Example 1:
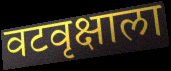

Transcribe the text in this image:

वटवृक्षाला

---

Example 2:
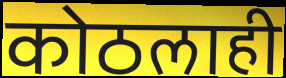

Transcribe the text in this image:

कोठलाही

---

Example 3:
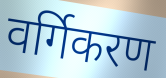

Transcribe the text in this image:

वर्गिकरण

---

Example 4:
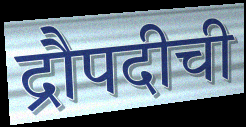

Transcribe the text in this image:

द्रौपदीची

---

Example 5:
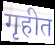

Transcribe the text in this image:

गृहीत